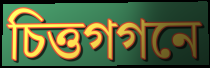
চিত্তগগনে